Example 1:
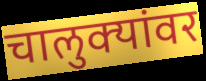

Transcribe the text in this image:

चालुक्यांवर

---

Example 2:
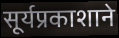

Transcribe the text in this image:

सूर्यप्रकाशाने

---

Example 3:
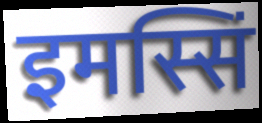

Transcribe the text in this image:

इमस्सिं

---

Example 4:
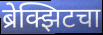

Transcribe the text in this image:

ब्रेक्झिटचा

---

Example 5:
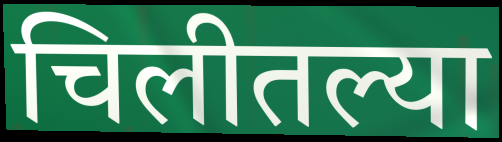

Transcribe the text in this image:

चिलीतल्या